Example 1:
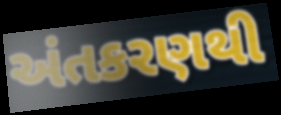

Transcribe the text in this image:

અંતકરણથી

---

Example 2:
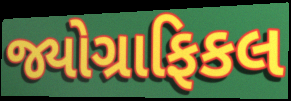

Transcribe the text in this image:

જ્યોગ્રાફિકલ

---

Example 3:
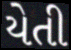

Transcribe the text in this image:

યેતી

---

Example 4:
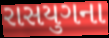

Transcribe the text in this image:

રાસયુગના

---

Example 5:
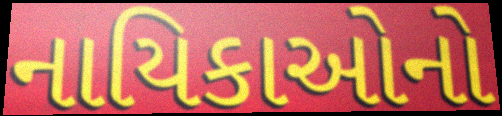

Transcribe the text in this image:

નાયિકાઓનો